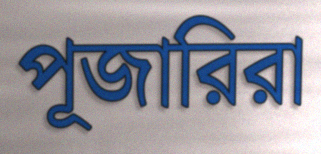
পূজারিরা